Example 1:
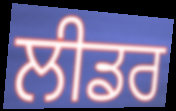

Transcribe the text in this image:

ਲੀਡਰ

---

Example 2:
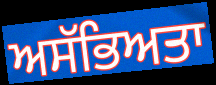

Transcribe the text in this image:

ਅਸੱਭਿਅਤਾ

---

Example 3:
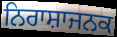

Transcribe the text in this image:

ਨਿਰਾਸ਼ਾਜਨਕ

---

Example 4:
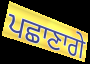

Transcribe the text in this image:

ਪਛਾਣਾਗੇ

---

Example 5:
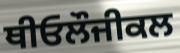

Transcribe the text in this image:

ਥੀਓਲੌਜੀਕਲ